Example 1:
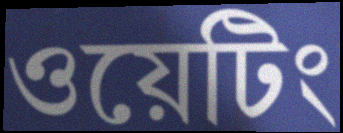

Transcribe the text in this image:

ওয়েটিং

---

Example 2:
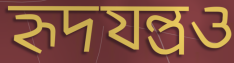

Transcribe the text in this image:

হৃদযন্ত্রও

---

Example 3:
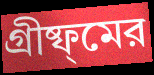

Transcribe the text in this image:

গ্রীষ্ফ্মের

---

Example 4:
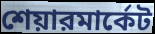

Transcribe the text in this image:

শেয়ারমার্কেট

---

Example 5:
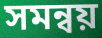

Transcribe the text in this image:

সমন্বয়